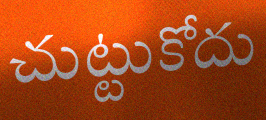
చుట్టుకోదు